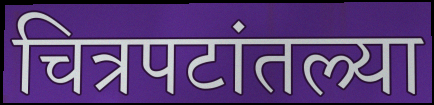
चित्रपटांतल्या